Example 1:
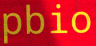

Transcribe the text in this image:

pbio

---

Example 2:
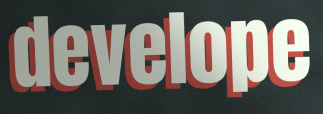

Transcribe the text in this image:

develope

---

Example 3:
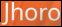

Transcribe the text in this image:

Jhoro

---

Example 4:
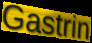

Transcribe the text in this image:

Gastrin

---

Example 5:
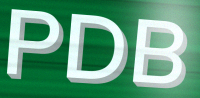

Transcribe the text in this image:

PDB